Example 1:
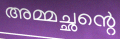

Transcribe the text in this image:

അമ്മച്ഛന്റെ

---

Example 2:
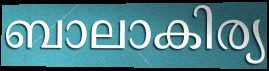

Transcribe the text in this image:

ബാലാകിര്യ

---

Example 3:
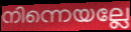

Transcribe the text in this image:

നിന്നെയല്ലേ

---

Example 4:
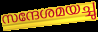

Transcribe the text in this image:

സന്ദേശമയച്ചു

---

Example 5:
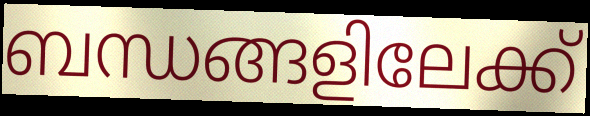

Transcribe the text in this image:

ബന്ധങ്ങളിലേക്ക്